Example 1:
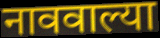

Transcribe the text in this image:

नाववाल्या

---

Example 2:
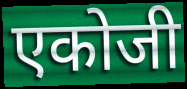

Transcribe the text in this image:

एकोजी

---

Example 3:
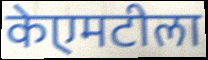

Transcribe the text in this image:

केएमटीला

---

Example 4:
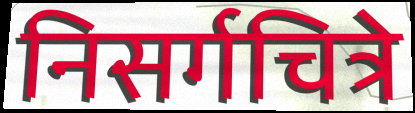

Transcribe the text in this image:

निसर्गचित्रे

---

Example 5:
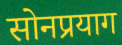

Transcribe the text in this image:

सोनप्रयाग